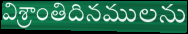
విశ్రాంతిదినములను